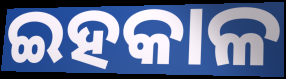
ଇହକାଳ